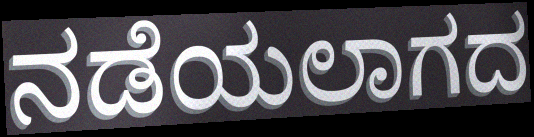
ನಡೆಯಲಾಗದ